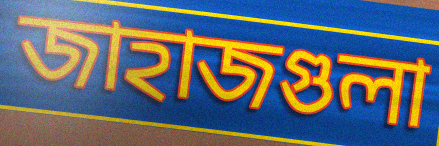
জাহাজগুলা